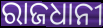
ରାଜଧାନୀ